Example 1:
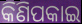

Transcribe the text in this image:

କିଣିପକାଇ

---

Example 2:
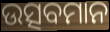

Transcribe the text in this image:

ଉତ୍ସବମାନ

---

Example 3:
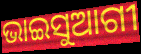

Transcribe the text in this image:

ଭାଇସୁଆଗୀ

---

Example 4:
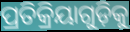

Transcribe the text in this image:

ପ୍ରତିକ୍ରିୟାଗୁଡ଼ିକୁ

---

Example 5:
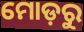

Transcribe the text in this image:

ମୋଡ଼ରୁ